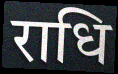
राधि